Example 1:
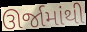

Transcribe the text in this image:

ઊર્જામાંથી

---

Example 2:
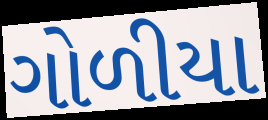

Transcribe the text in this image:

ગોળીયા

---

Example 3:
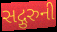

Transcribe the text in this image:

સદ્ગુરુની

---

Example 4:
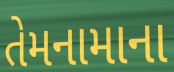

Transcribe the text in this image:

તેમનામાના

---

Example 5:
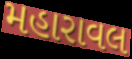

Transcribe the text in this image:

મહારાવલ